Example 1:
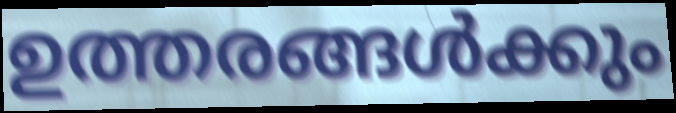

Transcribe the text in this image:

ഉത്തരങ്ങൾക്കും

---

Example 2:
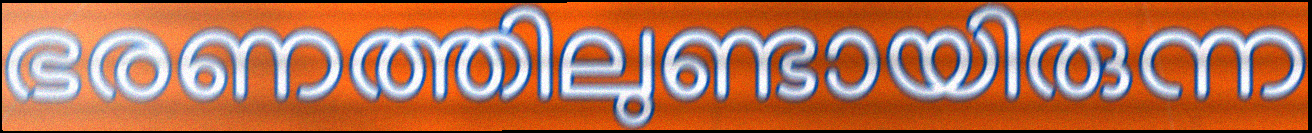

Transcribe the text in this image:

ഭരണത്തിലുണ്ടായിരുന്ന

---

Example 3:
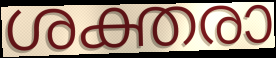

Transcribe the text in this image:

ശക്തരാ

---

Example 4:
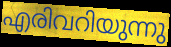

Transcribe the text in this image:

എരിവറിയുന്നു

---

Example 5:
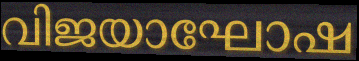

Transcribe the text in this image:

വിജയാഘോഷ